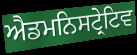
ਐਡਮਨਿਸਟ੍ਰੇਟਿਵ